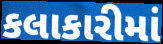
કલાકારીમાં